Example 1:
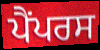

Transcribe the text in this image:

ਪੈਂਪਰਸ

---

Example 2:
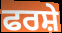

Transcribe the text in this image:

ਫਰਸ਼ੇ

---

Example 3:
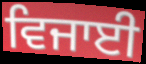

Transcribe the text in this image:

ਵਿਜਾਈ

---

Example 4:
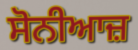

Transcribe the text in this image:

ਸੋਨੀਆਜ਼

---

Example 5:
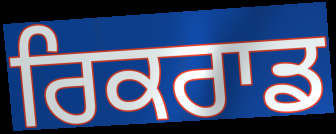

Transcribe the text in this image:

ਰਿਕਰਾਡ